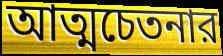
আত্মচেতনার